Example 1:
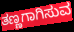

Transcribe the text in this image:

ತಣ್ಣಗಾಗಿಸುವ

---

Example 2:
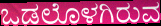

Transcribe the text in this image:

ಒಡಲೊಳಗಿರುವ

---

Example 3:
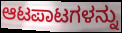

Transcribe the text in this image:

ಆಟಪಾಟಗಳನ್ನು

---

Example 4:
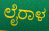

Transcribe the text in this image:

ಲೈರಾಳ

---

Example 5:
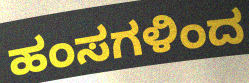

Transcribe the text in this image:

ಹಂಸಗಳಿಂದ